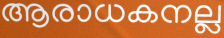
ആരാധകനല്ല